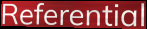
Referential